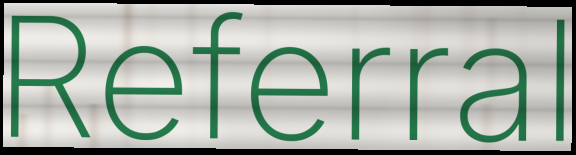
Referral